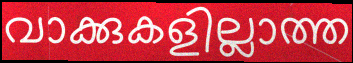
വാക്കുകളില്ലാത്ത